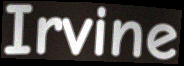
Irvine